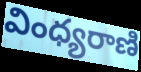
వింధ్యరాణి